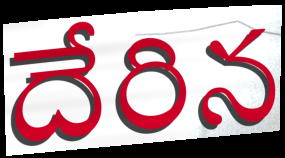
దేరిన